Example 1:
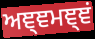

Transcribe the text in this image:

ਅਞ੍ਞਮਞ੍ਞਂ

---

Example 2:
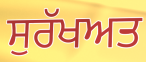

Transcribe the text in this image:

ਸੁਰੱਖਅਤ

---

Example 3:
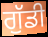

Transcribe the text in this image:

ਗੁੱਡੀ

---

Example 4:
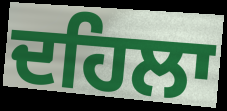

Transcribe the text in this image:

ਦਹਿਲਾ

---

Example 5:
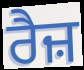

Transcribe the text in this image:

ਰੈਜ਼